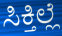
ಸಿಕ್ತಿಲ್ಲೆ